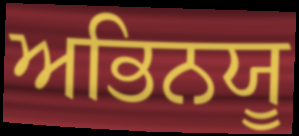
ਅਭਿਨਯੂ